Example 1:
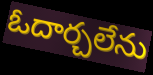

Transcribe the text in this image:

ఓదార్చలేను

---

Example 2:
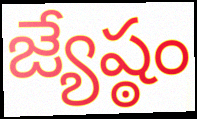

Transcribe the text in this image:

జ్యేష్ఠం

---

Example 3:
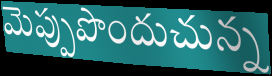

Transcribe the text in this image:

మెప్పుపొందుచున్న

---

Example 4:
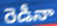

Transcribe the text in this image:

రెడీనా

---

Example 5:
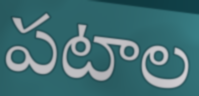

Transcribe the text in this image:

పటాల